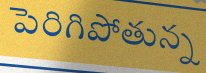
పెరిగిపోతున్న